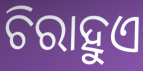
ଚିରାହୁଏ